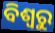
ବିଶ୍ଵରୁ